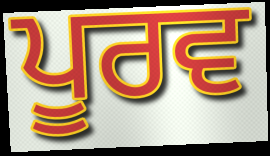
ਪੂਰਵ